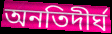
অনতিদীর্ঘ